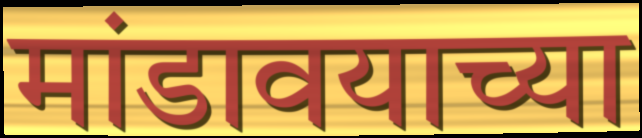
मांडावयाच्या